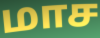
மாச